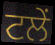
ਟਲੇਂ